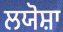
ਲਯੋਸ਼ਾ